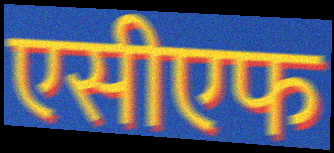
एसीएफ